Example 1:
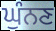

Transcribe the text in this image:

ਘੁੰਨਣ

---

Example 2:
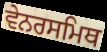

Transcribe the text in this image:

ਵੇਨਰਸਮਿਥ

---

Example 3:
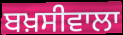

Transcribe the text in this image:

ਬਖ਼ਸੀਵਾਲਾ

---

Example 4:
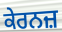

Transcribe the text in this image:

ਕੇਰਨਜ਼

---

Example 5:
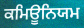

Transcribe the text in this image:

ਕਮਿਊਨਿਯਮ